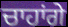
ਚਾਹਾਂਗੇ